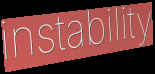
instability